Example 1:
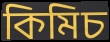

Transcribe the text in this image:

কিমিচ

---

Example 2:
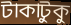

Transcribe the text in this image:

টাকাটুকু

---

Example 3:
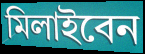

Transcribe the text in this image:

মিলাইবেন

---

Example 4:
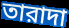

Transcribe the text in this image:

তারাদা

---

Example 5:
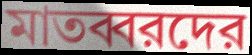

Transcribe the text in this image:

মাতব্বরদের